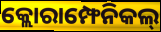
କ୍ଲୋରାମ୍ଫେନିକଲ୍